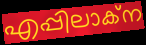
എപ്പിലാക്ന